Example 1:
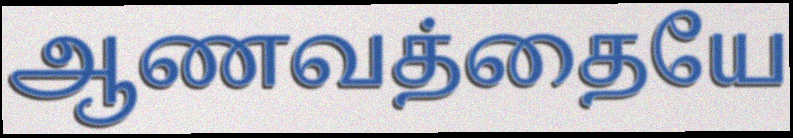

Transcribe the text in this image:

ஆணவத்தையே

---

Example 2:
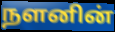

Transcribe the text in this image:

நளனின்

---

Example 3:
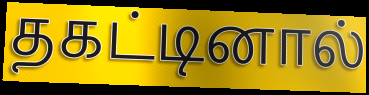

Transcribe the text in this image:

தகட்டினால்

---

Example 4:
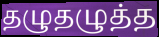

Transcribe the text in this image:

தழுதழுத்த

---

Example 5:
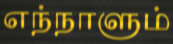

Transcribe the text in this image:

எந்நாளும்